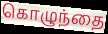
கொழுந்தை